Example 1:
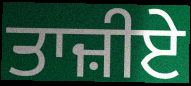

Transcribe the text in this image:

ਤਾਜ਼ੀਏ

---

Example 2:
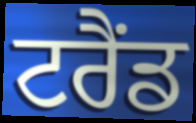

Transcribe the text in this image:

ਟਰੈਂਡ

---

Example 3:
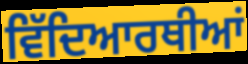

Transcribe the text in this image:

ਵਿੱਦਿਆਰਥੀਆਂ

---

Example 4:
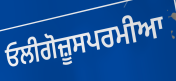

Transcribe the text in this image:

ਓਲੀਗੋਜ਼ੂਸਪਰਮੀਆ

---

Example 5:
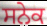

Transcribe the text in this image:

ਸਨੇਕ